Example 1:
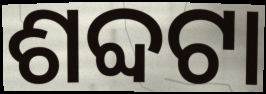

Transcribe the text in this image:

ଶବ୍ଦଟା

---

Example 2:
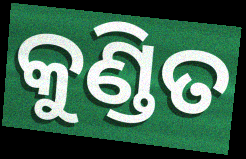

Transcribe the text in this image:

କୁଣ୍ଡିତ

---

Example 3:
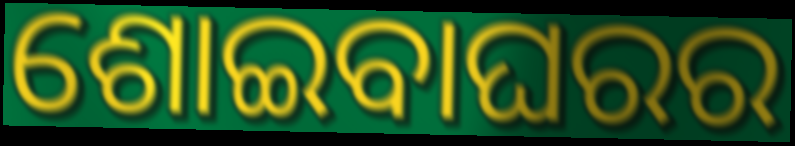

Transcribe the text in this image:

ଶୋଇବାଘରର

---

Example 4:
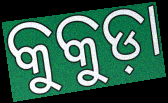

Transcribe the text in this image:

କୁକୁଡ଼ା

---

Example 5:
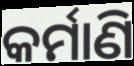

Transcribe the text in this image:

କର୍ମାଣି